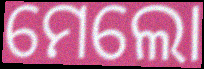
ମେଲୋ